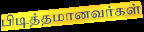
பிடித்தமானவர்கள்